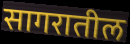
सागरातील